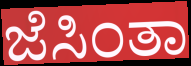
ಜೆಸಿಂತಾ